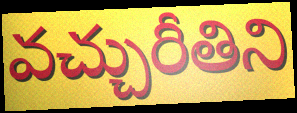
వచ్చురీతిని